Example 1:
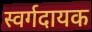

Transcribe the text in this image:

स्वर्गदायक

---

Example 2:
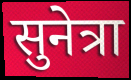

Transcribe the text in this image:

सुनेत्रा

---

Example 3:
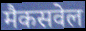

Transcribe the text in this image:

मैकसवेल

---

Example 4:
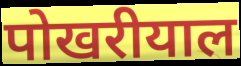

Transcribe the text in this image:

पोखरीयाल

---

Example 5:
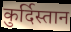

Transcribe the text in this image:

कुर्दिस्तान